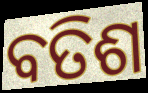
ବତିଶ